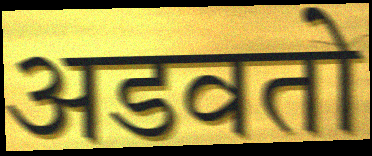
अडवतो